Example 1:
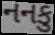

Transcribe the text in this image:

નનકુ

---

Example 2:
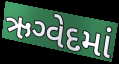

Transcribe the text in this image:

ઋગ્વેદમાં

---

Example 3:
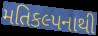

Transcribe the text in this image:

મતિકલ્પનાથી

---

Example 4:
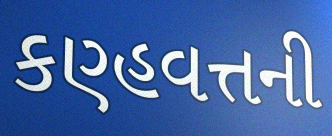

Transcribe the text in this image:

કણ્હવત્તની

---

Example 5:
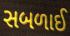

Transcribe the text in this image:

સબળાઈ